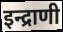
इन्द्राणी